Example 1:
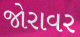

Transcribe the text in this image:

જોરાવર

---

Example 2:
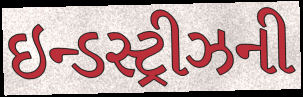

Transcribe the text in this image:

ઇન્ડસ્ટ્રીઝની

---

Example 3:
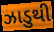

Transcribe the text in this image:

ઝાડુથી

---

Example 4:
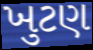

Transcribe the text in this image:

ખુટણ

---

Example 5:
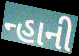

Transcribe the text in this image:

ન્હાની